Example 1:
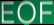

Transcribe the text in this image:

EOF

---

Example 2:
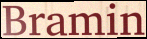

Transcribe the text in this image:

Bramin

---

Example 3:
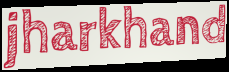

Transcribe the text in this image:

jharkhand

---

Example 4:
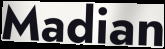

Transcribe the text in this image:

Madian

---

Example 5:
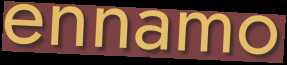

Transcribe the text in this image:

ennamo